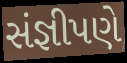
સંજ્ઞીપણે